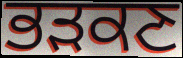
ਭੜਕਣ